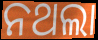
ନଥଲା